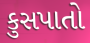
કુસપાતો